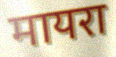
मायरा